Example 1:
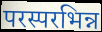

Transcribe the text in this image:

परस्परभिन्न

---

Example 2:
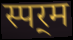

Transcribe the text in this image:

स्पर्म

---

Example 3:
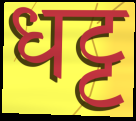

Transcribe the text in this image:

धट्ट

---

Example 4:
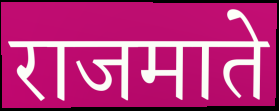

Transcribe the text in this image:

राजमाते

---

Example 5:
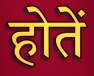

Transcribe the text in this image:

होतें